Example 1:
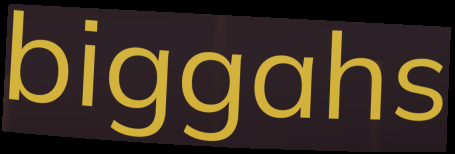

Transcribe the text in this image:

biggahs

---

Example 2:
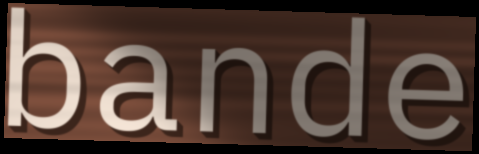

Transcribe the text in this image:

bande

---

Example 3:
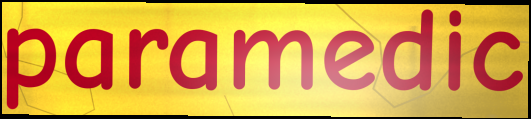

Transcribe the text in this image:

paramedic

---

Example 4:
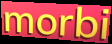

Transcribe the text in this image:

morbi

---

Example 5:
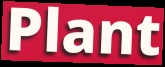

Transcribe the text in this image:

Plant